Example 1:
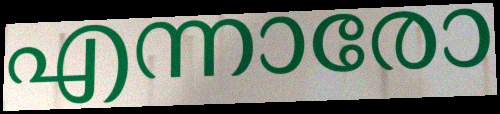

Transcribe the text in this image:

എന്നാരോ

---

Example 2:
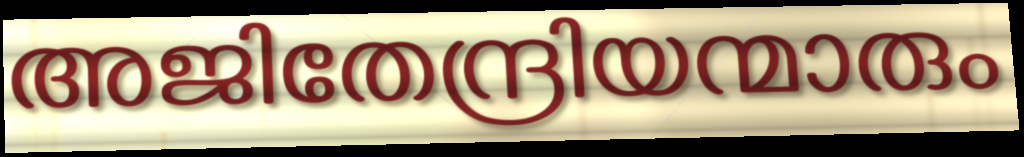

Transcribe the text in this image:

അജിതേന്ദ്രിയന്മാരും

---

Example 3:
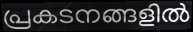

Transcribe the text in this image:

പ്രകടനങ്ങളിൽ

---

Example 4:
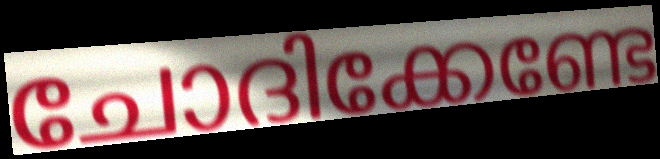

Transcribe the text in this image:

ചോദിക്കേണ്ടേ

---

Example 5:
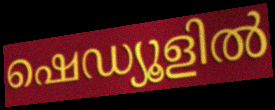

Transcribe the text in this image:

ഷെഡ്യൂളിൽ